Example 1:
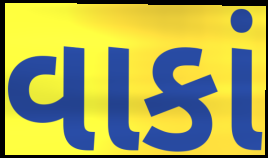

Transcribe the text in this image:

વાકાં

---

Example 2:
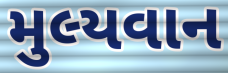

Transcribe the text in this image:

મુલ્યવાન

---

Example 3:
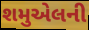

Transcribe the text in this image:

શમુએલની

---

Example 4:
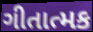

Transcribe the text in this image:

ગીતાત્મક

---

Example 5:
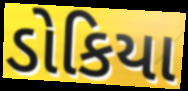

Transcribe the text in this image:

ડોકિયા